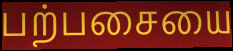
பற்பசையை